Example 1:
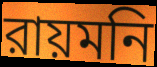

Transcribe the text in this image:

রায়মনি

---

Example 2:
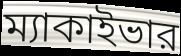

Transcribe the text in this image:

ম্যাকাইভার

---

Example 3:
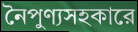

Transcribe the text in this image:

নৈপুণ্যসহকারে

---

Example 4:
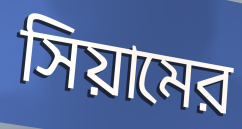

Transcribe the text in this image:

সিয়ামের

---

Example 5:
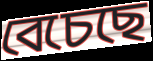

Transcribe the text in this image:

বেচেছে